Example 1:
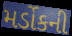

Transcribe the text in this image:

મર્ડોકની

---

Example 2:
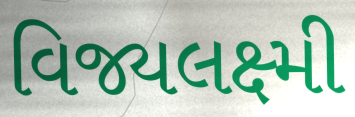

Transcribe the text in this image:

વિજ્યલક્ષ્મી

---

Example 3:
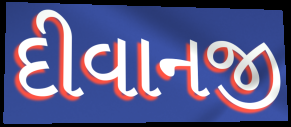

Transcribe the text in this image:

દીવાનજી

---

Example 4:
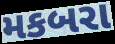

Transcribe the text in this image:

મકબરા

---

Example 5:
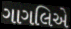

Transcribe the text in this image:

ગાગલિએ